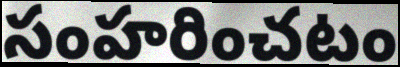
సంహరించటం